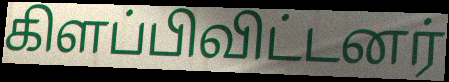
கிளப்பிவிட்டனர்